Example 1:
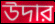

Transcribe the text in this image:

উদার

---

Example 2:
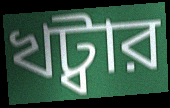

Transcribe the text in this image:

খট্বার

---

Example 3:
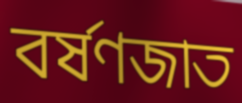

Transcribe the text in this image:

বর্ষণজাত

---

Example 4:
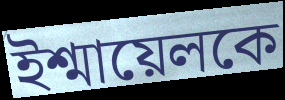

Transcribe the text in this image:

ইশ্মায়েলকে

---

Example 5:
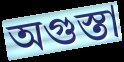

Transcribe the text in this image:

অগুস্তা